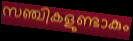
സഞ്ചികളുണ്ടാകും